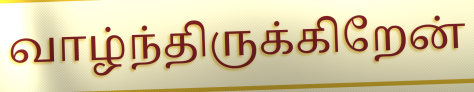
வாழ்ந்திருக்கிறேன்